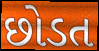
છોડત